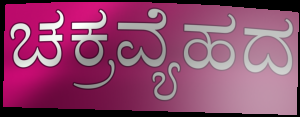
ಚಕ್ರವ್ಯೆಹದ